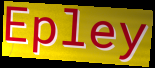
Epley